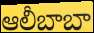
ఆలీబాబా